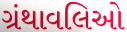
ગ્રંથાવલિઓ